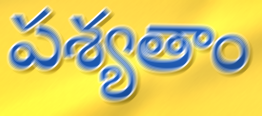
పశ్యతాం